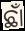
ଛାଁ